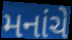
મનાંચે